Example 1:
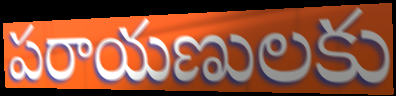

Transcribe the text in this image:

పరాయణులకు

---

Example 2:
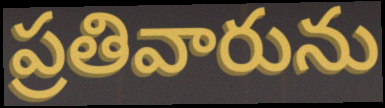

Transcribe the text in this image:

ప్రతివారును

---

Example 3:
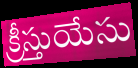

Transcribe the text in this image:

క్రీస్తుయేసు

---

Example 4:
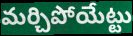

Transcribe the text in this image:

మర్చిపోయేట్టు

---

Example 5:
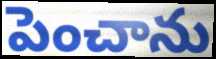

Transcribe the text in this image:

పెంచాను